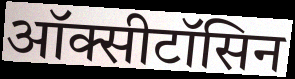
ऑक्सीटॉसिन